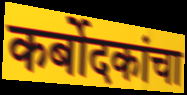
कर्बोदकांचा